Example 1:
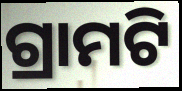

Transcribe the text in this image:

ଗ୍ରାମଟି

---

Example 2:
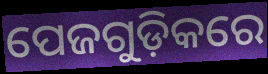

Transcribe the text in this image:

ପେଜଗୁଡ଼ିକରେ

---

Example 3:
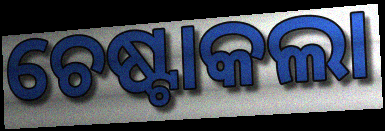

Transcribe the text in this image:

ଚେଷ୍ଟାକଲା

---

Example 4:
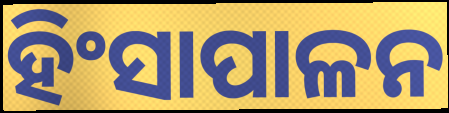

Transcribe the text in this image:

ହିଂସାପାଳନ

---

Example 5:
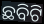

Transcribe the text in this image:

ଛବିଟି